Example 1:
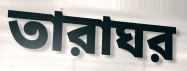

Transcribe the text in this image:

তারাঘর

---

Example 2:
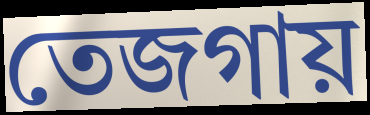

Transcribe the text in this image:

তেজগায়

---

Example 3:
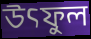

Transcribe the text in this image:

উৎফুল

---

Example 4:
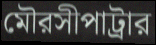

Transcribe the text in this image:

মৌরসীপাট্রার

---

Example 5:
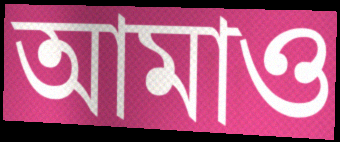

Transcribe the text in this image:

আমাও